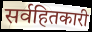
सर्वहितकारी